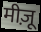
मीज़ू